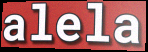
alela